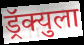
ड्रॅक्युला